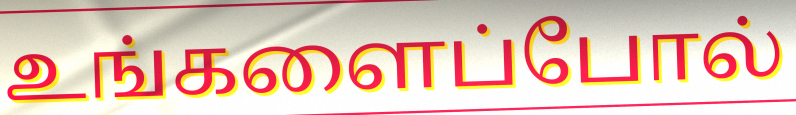
உங்களைப்போல்